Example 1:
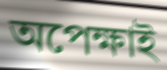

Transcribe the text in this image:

অপেক্ষাই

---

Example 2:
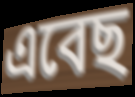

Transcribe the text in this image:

এবেছ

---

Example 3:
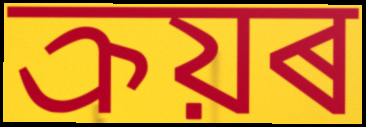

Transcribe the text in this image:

ক্ৰয়ৰ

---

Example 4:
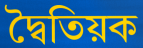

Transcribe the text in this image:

দ্বৈতিয়ক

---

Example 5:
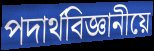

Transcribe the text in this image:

পদাৰ্থবিজ্ঞানীয়ে